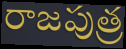
రాజపుత్ర